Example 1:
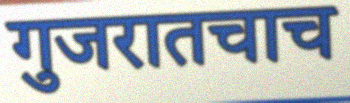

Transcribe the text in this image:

गुजरातचाच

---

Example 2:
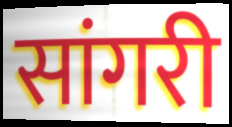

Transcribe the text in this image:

सांगरी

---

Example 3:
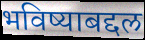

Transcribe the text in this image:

भविष्याबद्दल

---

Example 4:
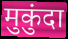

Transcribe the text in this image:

मुकुंदा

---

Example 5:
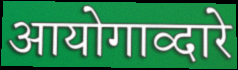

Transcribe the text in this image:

आयोगाव्दारे